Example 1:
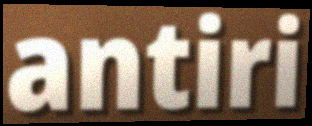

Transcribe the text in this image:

antiri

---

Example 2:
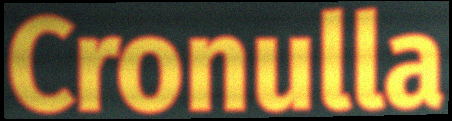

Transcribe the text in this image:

Cronulla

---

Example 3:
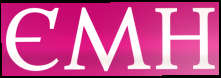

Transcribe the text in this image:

EMH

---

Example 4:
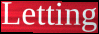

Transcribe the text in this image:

Letting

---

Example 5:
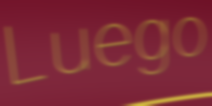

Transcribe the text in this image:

Luego